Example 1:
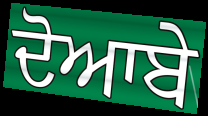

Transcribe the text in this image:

ਦੋਆਬੇ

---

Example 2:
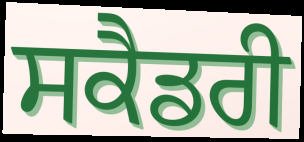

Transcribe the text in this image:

ਸਕੈਡਰੀ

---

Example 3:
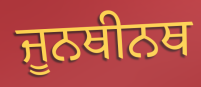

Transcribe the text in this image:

ਜੂਨਥੀਨਥ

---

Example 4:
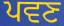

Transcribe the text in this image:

ਪਵਣ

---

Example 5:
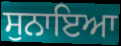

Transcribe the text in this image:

ਸੁਨਾਇਆ